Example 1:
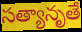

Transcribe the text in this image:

సత్యానృతే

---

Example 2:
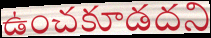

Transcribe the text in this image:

ఉంచకూడదని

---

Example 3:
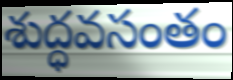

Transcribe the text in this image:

శుద్ధవసంతం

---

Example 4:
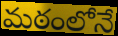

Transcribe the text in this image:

మఠంలోనే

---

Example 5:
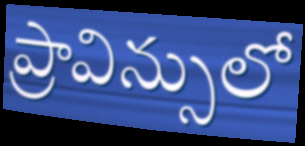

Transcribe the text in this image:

ప్రావిన్సులో